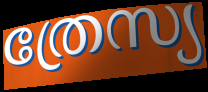
ത്രേസ്യ